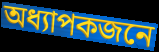
অধ্যাপকজনে